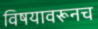
विषयावरूनच